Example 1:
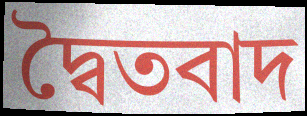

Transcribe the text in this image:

দ্বৈতবাদ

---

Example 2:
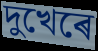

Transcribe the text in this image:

দুখেৰে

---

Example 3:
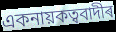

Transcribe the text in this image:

একনায়কত্ববাদীৰ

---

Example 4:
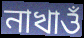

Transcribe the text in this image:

নাখাওঁ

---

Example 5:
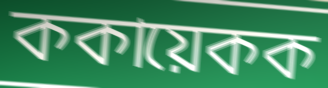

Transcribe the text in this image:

ককায়েকক